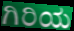
ಗಿರಿಯ